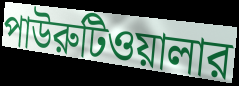
পাউরুটিওয়ালার